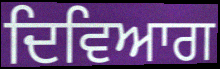
ਦਿਵਿਆਗ